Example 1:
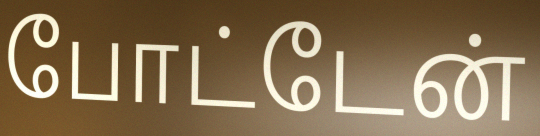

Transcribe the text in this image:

போட்டேன்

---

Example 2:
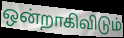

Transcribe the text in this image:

ஒன்றாகிவிடும்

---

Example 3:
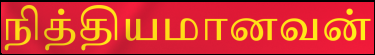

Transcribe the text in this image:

நித்தியமானவன்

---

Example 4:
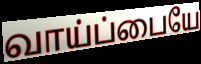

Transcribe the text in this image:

வாய்ப்பையே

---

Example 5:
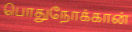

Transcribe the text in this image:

பொதுநோக்கான்